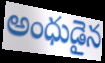
అంధుడైన